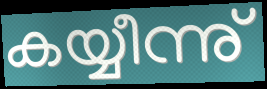
കയ്യീന്നു്